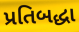
પ્રતિબદ્ધા